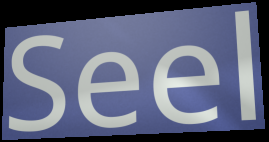
Seel